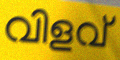
വിളവ്